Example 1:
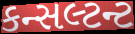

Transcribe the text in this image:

કન્સલ્ટન્ટ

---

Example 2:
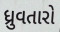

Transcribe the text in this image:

ધ્રુવતારો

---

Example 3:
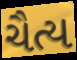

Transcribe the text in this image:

ચૈત્ય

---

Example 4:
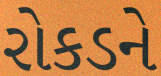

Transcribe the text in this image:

રોકડને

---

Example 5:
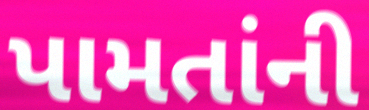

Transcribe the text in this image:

પામતાંની